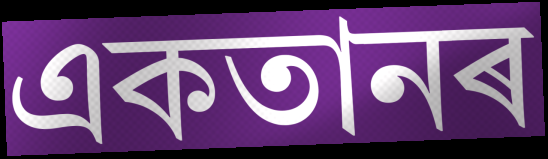
একতানৰ